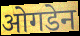
ओगडेन